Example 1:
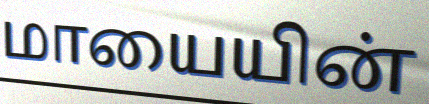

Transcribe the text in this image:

மாயையின்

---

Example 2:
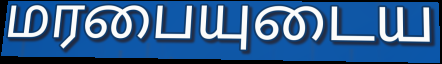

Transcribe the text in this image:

மரபையுடைய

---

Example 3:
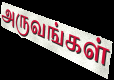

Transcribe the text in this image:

அருவங்கள்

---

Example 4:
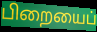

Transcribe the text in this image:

பிறையைப்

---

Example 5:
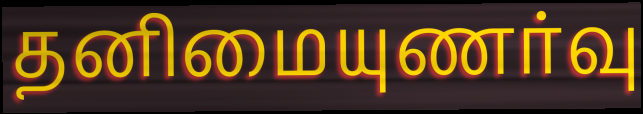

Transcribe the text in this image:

தனிமையுணர்வு